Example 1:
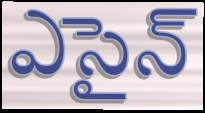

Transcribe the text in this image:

ఎసైన్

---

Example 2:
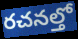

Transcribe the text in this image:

రచనల్తో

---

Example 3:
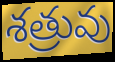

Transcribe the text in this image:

శత్రువు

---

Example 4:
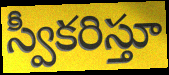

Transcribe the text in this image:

స్వీకరిస్తూ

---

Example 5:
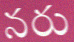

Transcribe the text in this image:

నరు